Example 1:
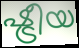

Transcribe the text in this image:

ഷ്ട്രീയ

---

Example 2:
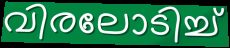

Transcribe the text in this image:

വിരലോടിച്ച്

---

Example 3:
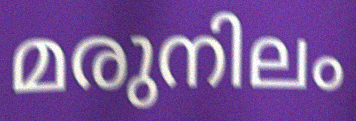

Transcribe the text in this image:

മരുനിലം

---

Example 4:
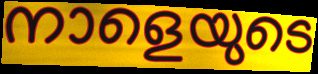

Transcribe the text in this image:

നാളെയുടെ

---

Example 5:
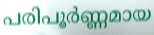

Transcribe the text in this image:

പരിപൂർണ്ണമായ